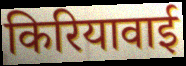
किरियावाई